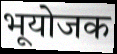
भूयोजक